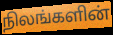
நிலங்களின்